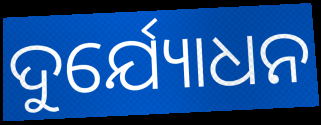
ଦୁର୍ଯ୍ୟୋଧନ